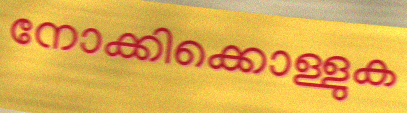
നോക്കിക്കൊള്ളുക